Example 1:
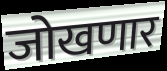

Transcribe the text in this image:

जोखणार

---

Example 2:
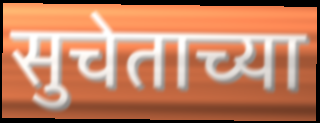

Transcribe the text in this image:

सुचेताच्या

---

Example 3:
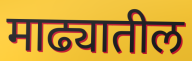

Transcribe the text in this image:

माढ्यातील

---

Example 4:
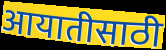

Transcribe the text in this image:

आयातीसाठी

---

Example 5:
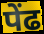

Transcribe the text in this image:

पेंढ